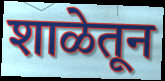
शाळेतून